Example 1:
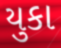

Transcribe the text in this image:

યુકા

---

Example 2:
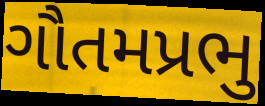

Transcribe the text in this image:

ગૌતમપ્રભુ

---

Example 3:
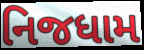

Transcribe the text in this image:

નિજધામ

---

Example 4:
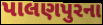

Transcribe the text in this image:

પાલણપુરના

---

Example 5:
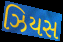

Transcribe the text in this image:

ઝિયસ